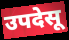
उपदेसू